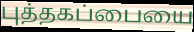
புத்தகப்பையை